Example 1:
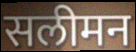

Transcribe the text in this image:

सलीमन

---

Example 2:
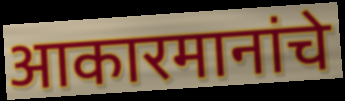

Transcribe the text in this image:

आकारमानांचे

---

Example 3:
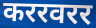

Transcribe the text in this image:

कररवरर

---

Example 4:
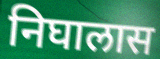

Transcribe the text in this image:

निघालास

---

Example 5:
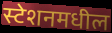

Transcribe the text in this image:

स्टेशनमधील